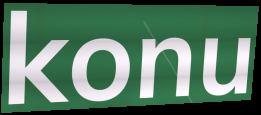
konu